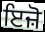
ਇਜ਼ੋ